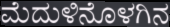
ಮೆದುಳಿನೊಳಗಿನ